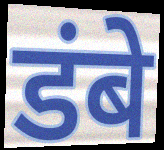
डंबे